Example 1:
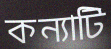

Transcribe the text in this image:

কন্যাটি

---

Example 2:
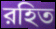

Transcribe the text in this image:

রহিত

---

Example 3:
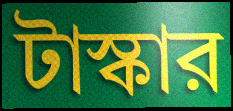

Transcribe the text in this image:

টাস্কার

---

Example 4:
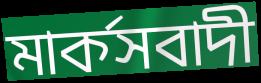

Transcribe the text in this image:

মার্কসবাদী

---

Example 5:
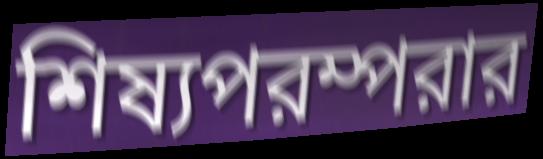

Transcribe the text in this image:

শিষ্যপরম্পরার